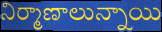
నిర్మాణాలున్నాయి